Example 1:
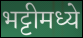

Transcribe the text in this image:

भट्टीमध्ये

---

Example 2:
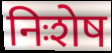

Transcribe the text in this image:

निःशेष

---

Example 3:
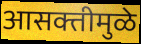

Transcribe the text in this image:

आसक्तीमुळे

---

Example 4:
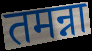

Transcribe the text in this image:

तमन्ना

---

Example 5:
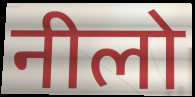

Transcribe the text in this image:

नीलो